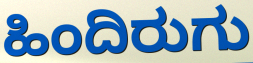
ಹಿಂದಿರುಗು